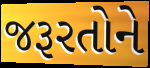
જરૂરતોને